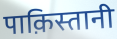
पाक़िस्तानी